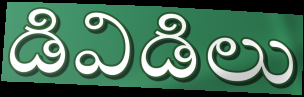
డివిడిలు